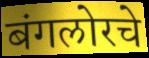
बंगलोरचे